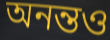
অনন্তও